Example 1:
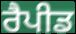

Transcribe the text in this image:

ਰੈਪੀਡ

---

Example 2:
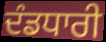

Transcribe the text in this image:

ਦੰਡਧਾਰੀ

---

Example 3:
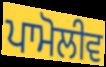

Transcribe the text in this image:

ਪਾਮੋਲੀਵ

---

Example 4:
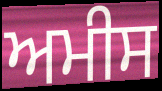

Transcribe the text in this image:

ਅਮੀਸ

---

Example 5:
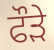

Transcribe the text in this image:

ਫੌੜੇ